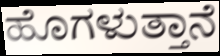
ಹೊಗಳುತ್ತಾನೆ